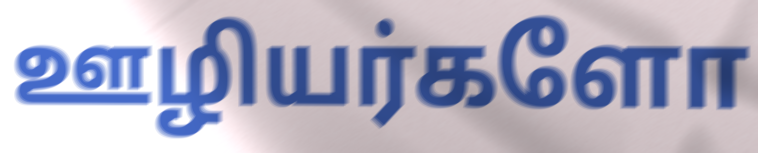
ஊழியர்களோ